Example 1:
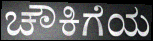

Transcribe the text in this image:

ಚೌಕಿಗೆಯ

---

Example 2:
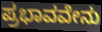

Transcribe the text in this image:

ಪ್ರಭಾವವೇನು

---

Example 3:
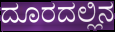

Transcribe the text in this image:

ದೂರದಲ್ಲಿನ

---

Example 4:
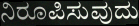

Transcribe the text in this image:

ನಿರೂಪಿಸುವುದು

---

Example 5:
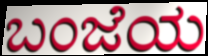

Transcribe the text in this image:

ಬಂಜೆಯ